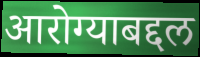
आरोग्याबद्दल